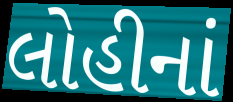
લોહીનાં